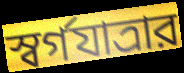
স্বর্গযাত্রার